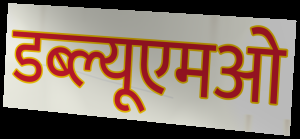
डब्ल्यूएमओ